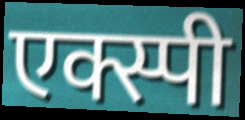
एक्स्पी